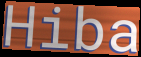
Hiba